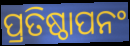
ପ୍ରତିଷ୍ଠାପନଂ